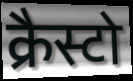
क्रैस्टो